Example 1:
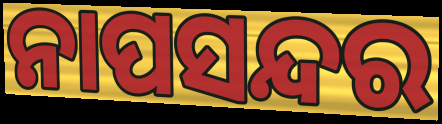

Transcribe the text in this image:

ନାପସନ୍ଦର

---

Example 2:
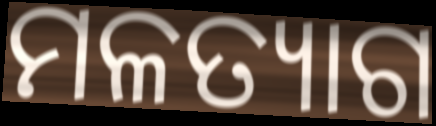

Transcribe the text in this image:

ମଳତ୍ୟାଗ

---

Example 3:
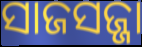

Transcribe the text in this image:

ସାଜସଜ୍ଜା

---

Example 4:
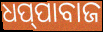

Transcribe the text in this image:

ଧପ୍‌ପାବାଜ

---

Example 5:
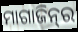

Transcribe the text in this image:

ମାଗାଜିନ୍‍ର